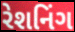
રેશનિંગ